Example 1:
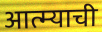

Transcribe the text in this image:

आत्म्याची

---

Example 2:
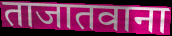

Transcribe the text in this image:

ताजातवाना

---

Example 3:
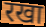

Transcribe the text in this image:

रखा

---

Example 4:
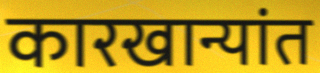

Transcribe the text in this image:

कारखान्यांत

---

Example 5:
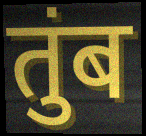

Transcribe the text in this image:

तुंब